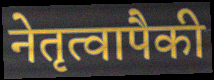
नेतृत्वापैकी